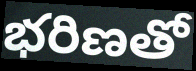
భరిణతో